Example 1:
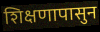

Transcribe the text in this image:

शिक्षणापासुन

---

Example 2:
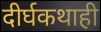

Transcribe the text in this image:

दीर्घकथाही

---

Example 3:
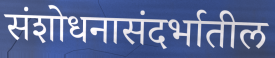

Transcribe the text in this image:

संशोधनासंदर्भातील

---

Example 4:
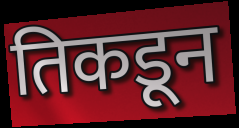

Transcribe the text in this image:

तिकडून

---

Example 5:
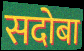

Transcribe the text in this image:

सदोबा